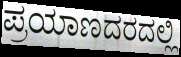
ಪ್ರಯಾಣದರದಲ್ಲಿ